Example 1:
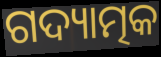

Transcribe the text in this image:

ଗଦ୍ୟାତ୍ମକ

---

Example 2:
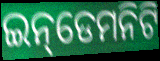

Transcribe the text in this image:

ଇନ୍‌ଡେମନିଟି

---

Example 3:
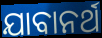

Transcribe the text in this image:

ଯାବାନର୍ଥ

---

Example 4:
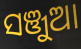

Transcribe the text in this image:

ସଞ୍ଜୁଆ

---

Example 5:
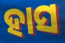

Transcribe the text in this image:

ହାସ